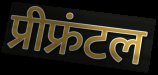
प्रीफ्रंटल